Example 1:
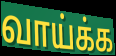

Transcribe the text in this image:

வாய்க்க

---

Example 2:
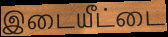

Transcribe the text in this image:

இடையீட்டை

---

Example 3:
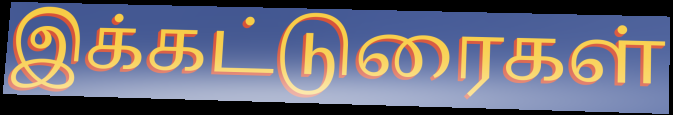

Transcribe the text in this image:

இக்கட்டுரைகள்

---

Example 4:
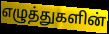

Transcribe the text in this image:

எழுத்துகளின்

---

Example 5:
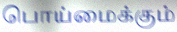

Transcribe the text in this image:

பொய்மைக்கும்